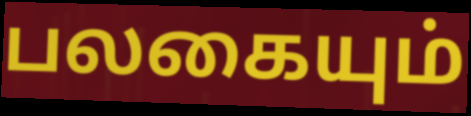
பலகையும்